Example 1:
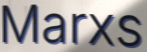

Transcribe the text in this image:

Marxs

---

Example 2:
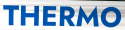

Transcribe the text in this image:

THERMO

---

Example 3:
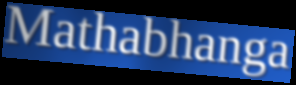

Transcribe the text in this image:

Mathabhanga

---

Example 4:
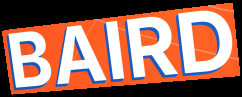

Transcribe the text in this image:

BAIRD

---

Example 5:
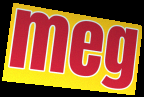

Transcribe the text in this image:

meg